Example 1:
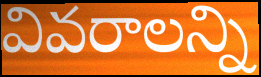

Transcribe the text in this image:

వివరాలన్ని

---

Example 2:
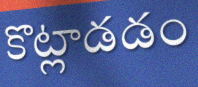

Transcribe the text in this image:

కొట్లాడడం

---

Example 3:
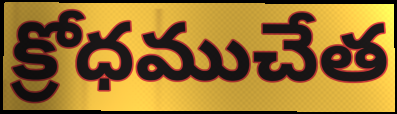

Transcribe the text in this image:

క్రోధముచేత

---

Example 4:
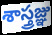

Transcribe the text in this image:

శాస్త్రజ్ఞు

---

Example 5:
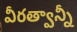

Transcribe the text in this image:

వీరత్వాన్నీ